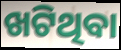
ଖଟିଥିବା